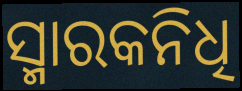
ସ୍ମାରକନିଧି